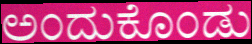
ಅಂದುಕೊಂಡು